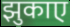
झुकाए